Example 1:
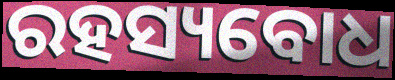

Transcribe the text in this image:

ରହସ୍ୟବୋଧ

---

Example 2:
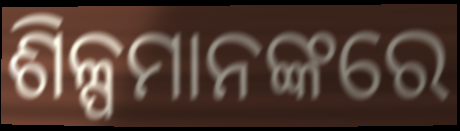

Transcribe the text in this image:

ଶିଳ୍ପମାନଙ୍କରେ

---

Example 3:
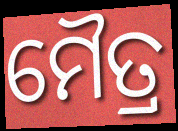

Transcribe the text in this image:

ମୈତ୍ର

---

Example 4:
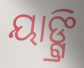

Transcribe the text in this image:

ୟାଙ୍ଗ୍ରି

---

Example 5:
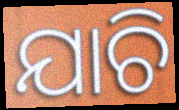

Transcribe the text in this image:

ଯାଚି